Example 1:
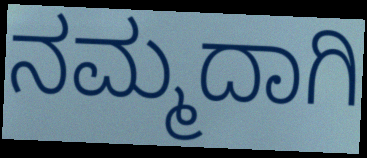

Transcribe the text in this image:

ನಮ್ಮದಾಗಿ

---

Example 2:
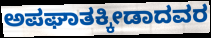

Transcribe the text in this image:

ಅಪಘಾತಕ್ಕೀಡಾದವರ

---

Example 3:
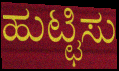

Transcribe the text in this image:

ಹುಟ್ಟಿಸು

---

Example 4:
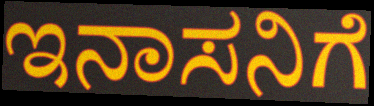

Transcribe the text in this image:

ಇನಾಸನಿಗೆ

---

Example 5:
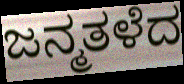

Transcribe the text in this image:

ಜನ್ಮತಳೆದ